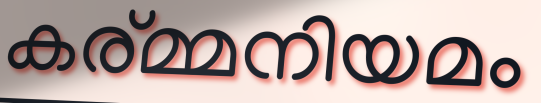
കര്മ്മനിയമം